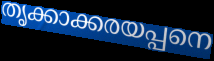
തൃക്കാക്കരയപ്പനെ